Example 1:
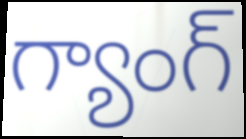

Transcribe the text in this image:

గ్యాంగ్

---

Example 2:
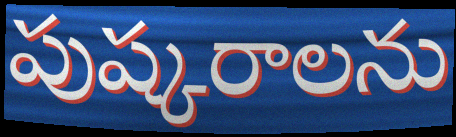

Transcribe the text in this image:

పుష్కరాలను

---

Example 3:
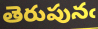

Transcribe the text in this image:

తెరుపునఁ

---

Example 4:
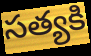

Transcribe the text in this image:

సత్యకి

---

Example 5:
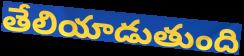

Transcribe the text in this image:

తేలియాడుతుంది